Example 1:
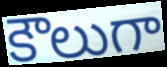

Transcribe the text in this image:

కౌలుగా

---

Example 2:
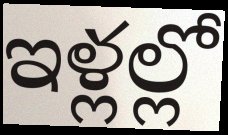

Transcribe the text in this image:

ఇళ్లల్లో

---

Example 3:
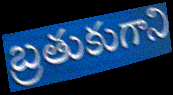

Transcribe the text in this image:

బ్రతుకుగాని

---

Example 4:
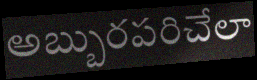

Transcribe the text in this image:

అబ్బురపరిచేలా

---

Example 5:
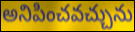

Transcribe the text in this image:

అనిపించవచ్చును